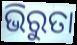
ଭିରୁତା